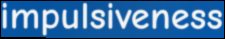
impulsiveness